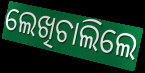
ଲେଖିଚାଲିଲେ